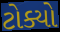
ટોક્યો